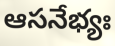
ఆసనేభ్యః